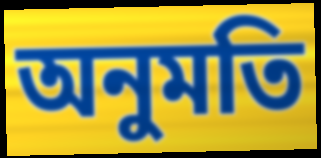
অনুমতি